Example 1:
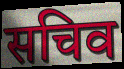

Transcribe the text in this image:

सचिव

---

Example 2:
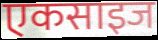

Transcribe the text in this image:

एकसाइज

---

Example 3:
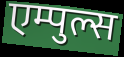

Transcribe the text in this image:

एम्पुल्स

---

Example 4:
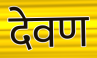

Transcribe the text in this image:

देवण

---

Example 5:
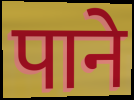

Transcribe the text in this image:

पाने